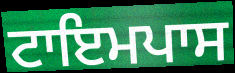
ਟਾਇਮਪਾਸ